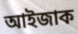
আইজাক